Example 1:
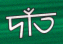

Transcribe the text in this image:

দাঁত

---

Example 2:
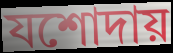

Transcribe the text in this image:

যশোদায়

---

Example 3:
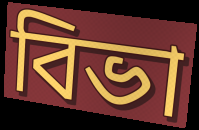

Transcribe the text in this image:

বিভা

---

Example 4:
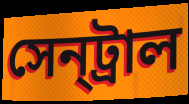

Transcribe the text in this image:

সেন্‌ট্রাল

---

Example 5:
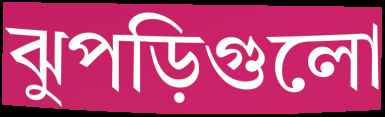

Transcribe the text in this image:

ঝুপড়িগুলো